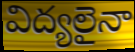
విద్యలైనా